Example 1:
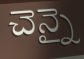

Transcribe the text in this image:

చెన్నై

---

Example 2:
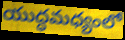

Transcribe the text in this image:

యుద్ధమధ్యంలో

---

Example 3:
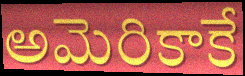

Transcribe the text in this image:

అమెరికాకే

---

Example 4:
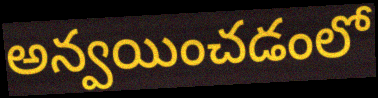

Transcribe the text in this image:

అన్వయించడంలో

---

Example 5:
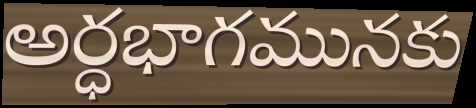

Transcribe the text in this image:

అర్ధభాగమునకు